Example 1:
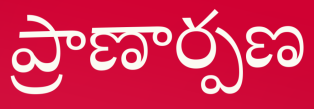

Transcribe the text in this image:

ప్రాణార్పణ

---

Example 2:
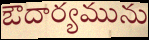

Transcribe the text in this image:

ఔదార్యమును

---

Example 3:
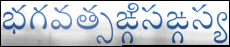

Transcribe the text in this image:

భగవత్సఙ్గిసఙ్గస్య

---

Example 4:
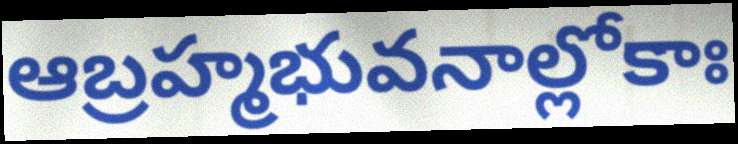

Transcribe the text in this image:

ఆబ్రహ్మభువనాల్లోకాః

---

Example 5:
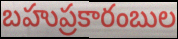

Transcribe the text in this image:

బహుప్రకారంబుల